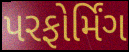
પરફોર્મિંગ